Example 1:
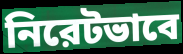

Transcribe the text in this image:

নিরেটভাবে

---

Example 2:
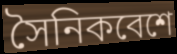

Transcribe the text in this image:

সৈনিকবেশে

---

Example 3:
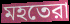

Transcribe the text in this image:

মহতেরা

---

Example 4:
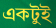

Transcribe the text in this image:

একটুই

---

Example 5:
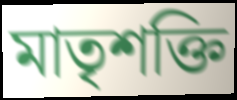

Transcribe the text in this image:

মাতৃশক্তি